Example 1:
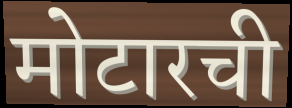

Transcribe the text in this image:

मोटारची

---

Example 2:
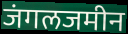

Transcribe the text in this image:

जंगलजमीन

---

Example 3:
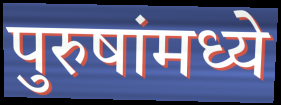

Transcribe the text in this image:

पुरुषांमध्ये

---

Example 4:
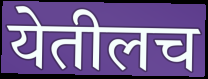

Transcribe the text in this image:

येतीलच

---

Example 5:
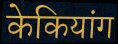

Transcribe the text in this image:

केकियांग